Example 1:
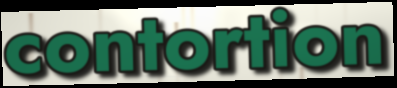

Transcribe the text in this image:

contortion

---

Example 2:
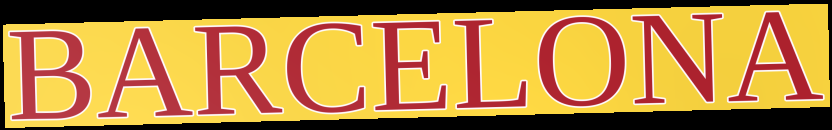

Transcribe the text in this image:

BARCELONA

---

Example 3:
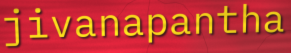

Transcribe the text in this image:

jivanapantha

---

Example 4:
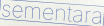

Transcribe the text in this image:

sementara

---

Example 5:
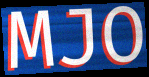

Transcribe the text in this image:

MJO